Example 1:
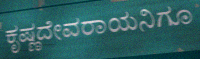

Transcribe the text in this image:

ಕೃಷ್ಣದೇವರಾಯನಿಗೂ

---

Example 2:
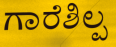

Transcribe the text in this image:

ಗಾರೆಶಿಲ್ಪ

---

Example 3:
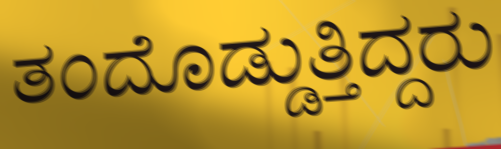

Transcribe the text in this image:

ತಂದೊಡ್ಡುತ್ತಿದ್ದರು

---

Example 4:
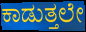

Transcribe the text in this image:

ಕಾಡುತ್ತಲೇ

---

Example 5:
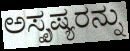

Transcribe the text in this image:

ಅಸ್ಪೃಷ್ಯರನ್ನು